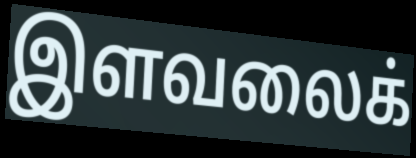
இளவலைக்